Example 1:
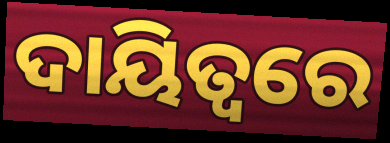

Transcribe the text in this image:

ଦାୟିତ୍ୱରେ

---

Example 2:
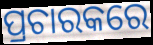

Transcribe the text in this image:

ପ୍ରଚାରକରେ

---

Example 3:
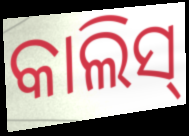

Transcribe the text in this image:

କାଲିସ୍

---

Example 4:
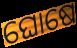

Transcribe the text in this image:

ଘୋଷେ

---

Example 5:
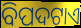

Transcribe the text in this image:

ବିପଦଟାଏ